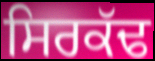
ਸਿਰਕੱਢ